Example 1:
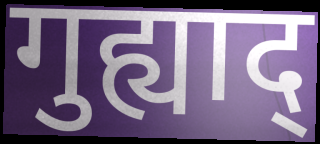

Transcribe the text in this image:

गुह्याद्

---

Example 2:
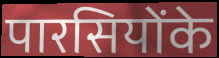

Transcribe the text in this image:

पारसियोंके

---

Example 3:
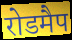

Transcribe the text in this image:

रोडमैप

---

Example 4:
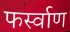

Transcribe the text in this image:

फर्स्वाण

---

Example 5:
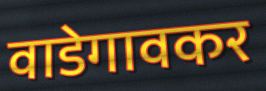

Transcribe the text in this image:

वाडेगावकर